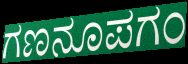
ಗಣನೂಪಗಂ